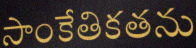
సాంకేతికతను